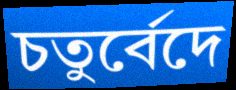
চতুর্বেদে